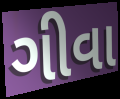
ગીવા